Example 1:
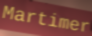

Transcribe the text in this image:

Martimer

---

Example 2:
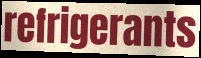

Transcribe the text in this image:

refrigerants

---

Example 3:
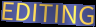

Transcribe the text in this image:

EDITING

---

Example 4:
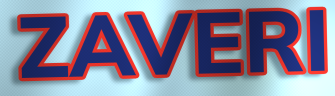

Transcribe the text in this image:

ZAVERI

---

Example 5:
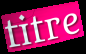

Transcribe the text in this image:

titre